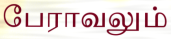
பேராவலும்